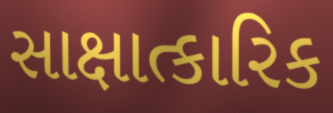
સાક્ષાત્કારિક